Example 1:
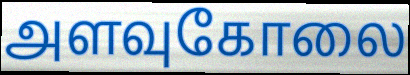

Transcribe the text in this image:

அளவுகோலை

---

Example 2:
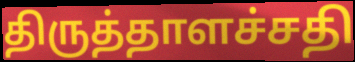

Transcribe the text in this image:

திருத்தாளச்சதி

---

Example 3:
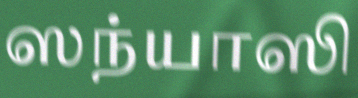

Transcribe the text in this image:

ஸந்யாஸி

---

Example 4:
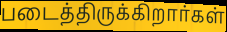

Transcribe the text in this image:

படைத்திருக்கிறார்கள்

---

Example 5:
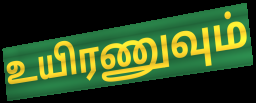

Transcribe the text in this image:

உயிரணுவும்